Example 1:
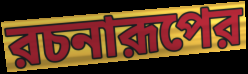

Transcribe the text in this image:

রচনারূপের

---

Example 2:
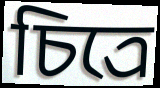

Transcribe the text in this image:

চিত্রে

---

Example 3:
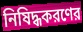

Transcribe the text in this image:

নিষিদ্ধকরণের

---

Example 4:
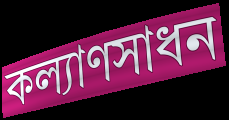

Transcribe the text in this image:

কল্যাণসাধন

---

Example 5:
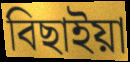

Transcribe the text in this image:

বিছাইয়া